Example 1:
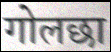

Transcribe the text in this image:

गोलछा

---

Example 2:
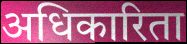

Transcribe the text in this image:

अधिकारिता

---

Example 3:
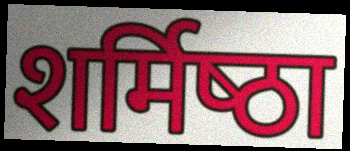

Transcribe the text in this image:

शर्मिष्‍ठा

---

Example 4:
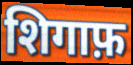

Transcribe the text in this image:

शिगाफ़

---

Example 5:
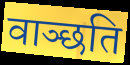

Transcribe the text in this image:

वाञ्छति